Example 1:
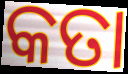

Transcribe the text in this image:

କତା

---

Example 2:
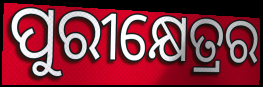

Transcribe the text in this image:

ପୁରୀକ୍ଷେତ୍ରର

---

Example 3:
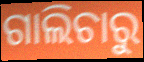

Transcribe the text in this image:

ଗାଲିଚାରୁ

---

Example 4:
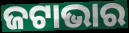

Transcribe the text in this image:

ଜଟାଭାର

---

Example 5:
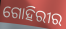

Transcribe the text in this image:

ଗୋହିରୀର